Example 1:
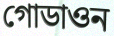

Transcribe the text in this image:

গোডাওন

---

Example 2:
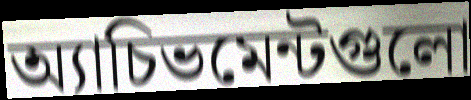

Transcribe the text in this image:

অ্যাচিভমেন্টগুলো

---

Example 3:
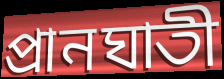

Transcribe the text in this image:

প্রানঘাতী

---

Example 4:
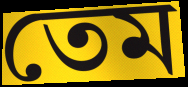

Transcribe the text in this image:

তেম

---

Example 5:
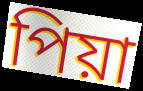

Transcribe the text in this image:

পিয়া